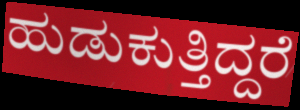
ಹುಡುಕುತ್ತಿದ್ದರೆ